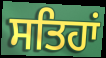
ਸਤਿਹਾਂ